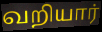
வறியார்